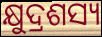
କ୍ଷୁଦ୍ରଶସ୍ୟ